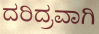
ದರಿದ್ರವಾಗಿ